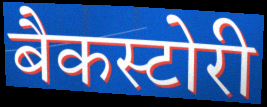
बैकस्टोरी